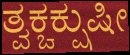
ತ್ವಕ್ಚಕ್ಷುಷೀ